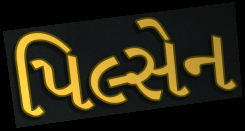
પિલ્સેન